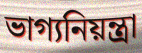
ভাগ্যনিয়ন্ত্রা